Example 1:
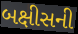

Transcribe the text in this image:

બક્ષીસની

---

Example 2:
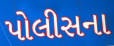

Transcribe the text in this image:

પોલીસના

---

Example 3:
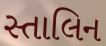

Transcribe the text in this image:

સ્તાલિન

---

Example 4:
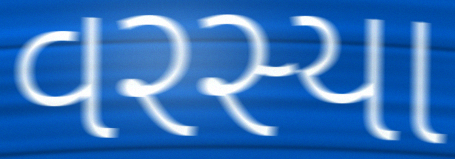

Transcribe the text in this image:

વરસ્યા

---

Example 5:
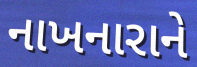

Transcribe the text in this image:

નાખનારાને